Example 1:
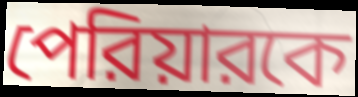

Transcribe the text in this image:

পেরিয়ারকে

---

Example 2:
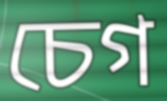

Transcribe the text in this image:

চেগ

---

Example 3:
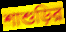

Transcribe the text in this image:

শাশুড়ির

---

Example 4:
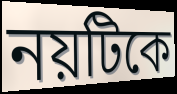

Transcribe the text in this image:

নয়টিকে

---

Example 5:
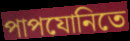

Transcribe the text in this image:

পাপযোনিতে